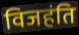
विजहंति